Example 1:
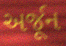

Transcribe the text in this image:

અર્જૂન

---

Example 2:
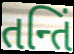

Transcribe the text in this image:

તન્તિં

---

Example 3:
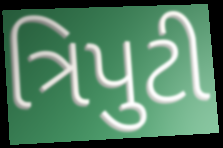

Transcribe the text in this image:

ત્રિપુટી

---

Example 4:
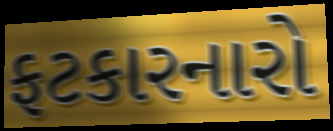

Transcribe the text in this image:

ફટકારનારો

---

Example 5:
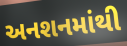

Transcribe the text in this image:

અનશનમાંથી